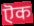
ऎक